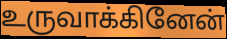
உருவாக்கினேன்